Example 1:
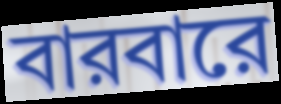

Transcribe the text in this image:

বারবারে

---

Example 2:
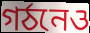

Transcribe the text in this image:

গঠনেও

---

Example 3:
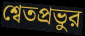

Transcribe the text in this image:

শ্বেতপ্রভুর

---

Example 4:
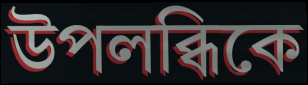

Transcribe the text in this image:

উপলব্ধিকে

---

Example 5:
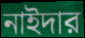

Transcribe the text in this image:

নাইদার